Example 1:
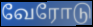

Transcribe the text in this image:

வேரோடு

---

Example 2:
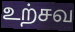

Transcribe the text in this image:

உற்சவ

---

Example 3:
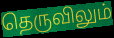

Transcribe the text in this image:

தெருவிலும்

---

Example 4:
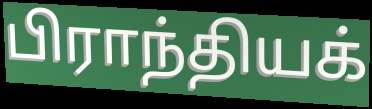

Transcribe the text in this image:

பிராந்தியக்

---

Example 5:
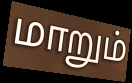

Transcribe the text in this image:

மாறும்